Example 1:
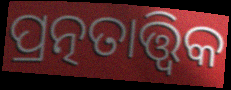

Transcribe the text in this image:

ପ୍ରତ୍ନତାତ୍ତ୍ଵିକ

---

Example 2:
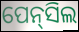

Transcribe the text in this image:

ପେନ୍‌ସିଲ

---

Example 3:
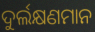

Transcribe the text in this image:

ଦୁର୍ଲକ୍ଷଣମାନ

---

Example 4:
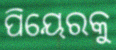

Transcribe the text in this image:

ପିୟେରକୁ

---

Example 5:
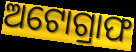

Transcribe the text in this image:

ଅଟୋଗ୍ରାଫ